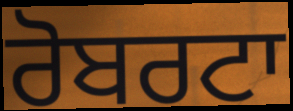
ਰੋਬਰਟਾ